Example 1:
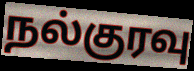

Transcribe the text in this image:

நல்குரவு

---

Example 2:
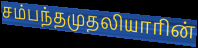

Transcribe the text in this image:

சம்பந்தமுதலியாரின்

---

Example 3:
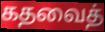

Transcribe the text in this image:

கதவைத்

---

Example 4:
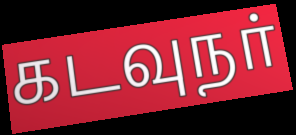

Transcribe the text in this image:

கடவுநர்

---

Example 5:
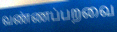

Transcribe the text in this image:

வண்ணப்பறவை